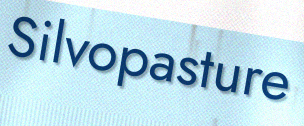
Silvopasture